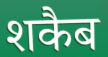
शकैब